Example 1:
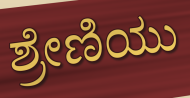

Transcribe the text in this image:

ಶ್ರೇಣಿಯು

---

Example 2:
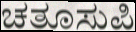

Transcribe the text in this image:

ಚತೂಸುಪಿ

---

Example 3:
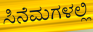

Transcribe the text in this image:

ಸಿನೆಮಗಳಲ್ಲಿ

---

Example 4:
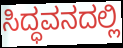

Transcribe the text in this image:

ಸಿದ್ಧವನದಲ್ಲಿ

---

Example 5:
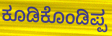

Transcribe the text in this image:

ಕೂಡಿಕೊಂಡಿಪ್ಪ